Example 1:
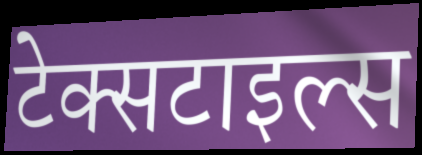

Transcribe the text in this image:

टेक्सटाइल्स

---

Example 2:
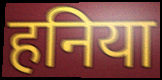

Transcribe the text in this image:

हनिया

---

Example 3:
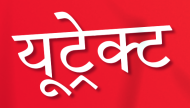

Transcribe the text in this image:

यूट्रेक्ट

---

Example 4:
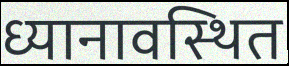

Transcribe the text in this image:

ध्यानावस्थित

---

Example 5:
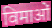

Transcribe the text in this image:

विमाओं